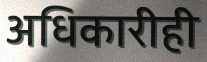
अधिकारीही